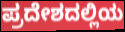
ಪ್ರದೇಶದಲ್ಲಿಯ